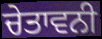
ਚੇਤਾਵਨੀ